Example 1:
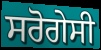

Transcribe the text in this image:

ਸਰੋਗੇਸੀ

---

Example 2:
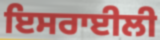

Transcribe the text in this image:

ਇਸਰਾਈਲੀ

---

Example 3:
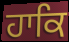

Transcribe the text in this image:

ਹਾਕਿ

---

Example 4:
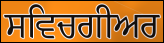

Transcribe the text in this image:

ਸਵਿਚਗੀਅਰ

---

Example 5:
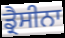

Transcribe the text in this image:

ਡ੍ਰੈਸੀਨਾ